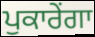
ਪੁਕਾਰੇਂਗਾ